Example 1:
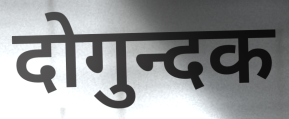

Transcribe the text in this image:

दोगुन्दक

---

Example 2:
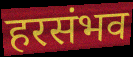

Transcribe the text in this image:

हरसंभव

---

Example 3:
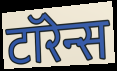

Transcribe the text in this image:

टॉरेन्स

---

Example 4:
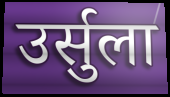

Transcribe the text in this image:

उर्सुला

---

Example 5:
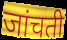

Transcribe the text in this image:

जांचती